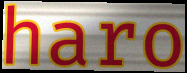
haro